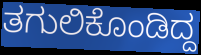
ತಗುಲಿಕೊಂಡಿದ್ದ